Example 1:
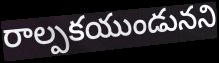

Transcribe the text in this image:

రాల్పకయుండునని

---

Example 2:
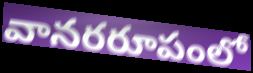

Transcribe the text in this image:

వానరరూపంలో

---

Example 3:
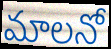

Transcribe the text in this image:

మాలనో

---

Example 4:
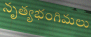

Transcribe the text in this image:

నృత్యభంగిమలు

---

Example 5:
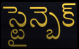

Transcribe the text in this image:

స్టైన్బెక్